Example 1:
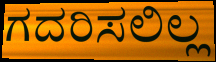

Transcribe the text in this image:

ಗದರಿಸಲಿಲ್ಲ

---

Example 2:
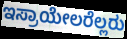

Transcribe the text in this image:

ಇಸ್ರಾಯೇಲರೆಲ್ಲರು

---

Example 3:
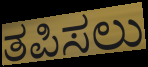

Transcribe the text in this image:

ತಪಿಸಲು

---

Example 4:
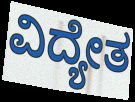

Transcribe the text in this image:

ವಿದ್ಯೇತ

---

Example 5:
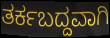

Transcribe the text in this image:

ತರ್ಕಬದ್ದವಾಗಿ